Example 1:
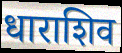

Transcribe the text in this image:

धाराशिव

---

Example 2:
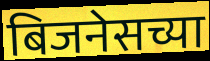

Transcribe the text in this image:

बिजनेसच्या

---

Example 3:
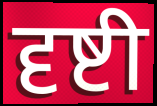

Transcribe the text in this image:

दृष्टी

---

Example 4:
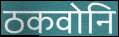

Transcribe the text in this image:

ठकवोनि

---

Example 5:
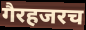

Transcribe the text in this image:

गैरहजरच